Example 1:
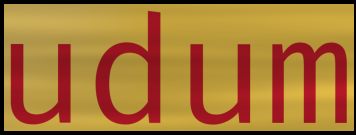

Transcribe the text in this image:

udum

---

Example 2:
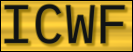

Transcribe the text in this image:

ICWF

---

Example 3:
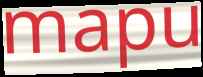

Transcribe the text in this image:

mapu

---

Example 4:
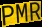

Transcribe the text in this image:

PMR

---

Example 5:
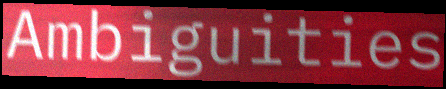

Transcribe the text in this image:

Ambiguities